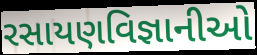
રસાયણવિજ્ઞાનીઓ